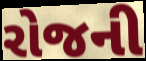
રોજની